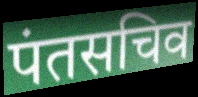
पंतसचिव